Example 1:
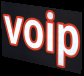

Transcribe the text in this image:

voip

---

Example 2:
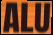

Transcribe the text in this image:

ALU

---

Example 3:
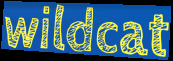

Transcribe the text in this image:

wildcat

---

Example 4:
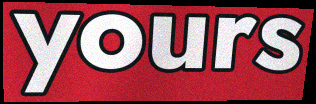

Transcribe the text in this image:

yours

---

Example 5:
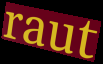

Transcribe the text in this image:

raut